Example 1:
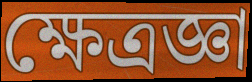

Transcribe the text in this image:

ক্ষেত্রজ্ঞা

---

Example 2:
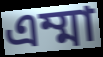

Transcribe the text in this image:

এম্মা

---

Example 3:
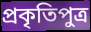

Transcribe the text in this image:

প্রকৃতিপুত্র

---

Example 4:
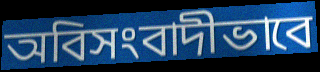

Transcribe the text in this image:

অবিসংবাদীভাবে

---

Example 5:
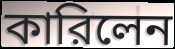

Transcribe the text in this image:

কারিলেন